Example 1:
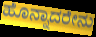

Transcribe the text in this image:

ಹೊನ್ನಾದರೇನು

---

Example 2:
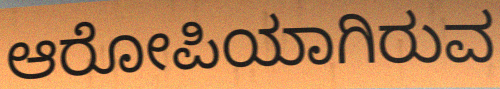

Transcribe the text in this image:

ಆರೋಪಿಯಾಗಿರುವ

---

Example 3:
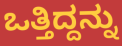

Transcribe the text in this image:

ಒತ್ತಿದ್ದನ್ನು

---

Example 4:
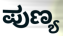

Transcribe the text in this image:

ಪುಣ್ಯ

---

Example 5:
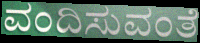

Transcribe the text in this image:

ವಂದಿಸುವಂತೆ